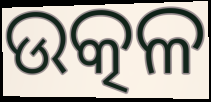
ଉତ୍କଳ